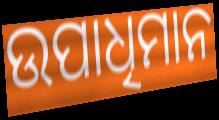
ଉପାଧିମାନ